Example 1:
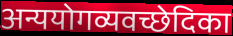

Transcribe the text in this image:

अन्ययोगव्यवच्छेदिका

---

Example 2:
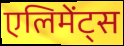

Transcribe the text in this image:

एलिमेंट्स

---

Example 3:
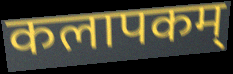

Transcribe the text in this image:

कलापकम्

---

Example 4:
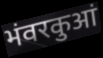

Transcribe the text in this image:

भंवरकुआं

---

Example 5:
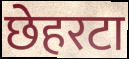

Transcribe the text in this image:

छेहरटा